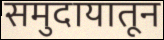
समुदायातून